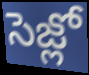
సెజ్లో